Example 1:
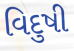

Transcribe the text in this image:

વિદુષી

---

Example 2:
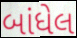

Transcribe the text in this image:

બાંધેલ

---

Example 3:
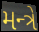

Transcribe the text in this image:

મન્ત્રે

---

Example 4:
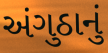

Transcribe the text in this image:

અંગુઠાનું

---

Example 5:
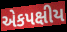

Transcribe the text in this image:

એકપક્ષીય